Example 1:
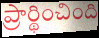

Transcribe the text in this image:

ప్రార్థించింది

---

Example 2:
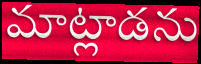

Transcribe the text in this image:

మాట్లాడను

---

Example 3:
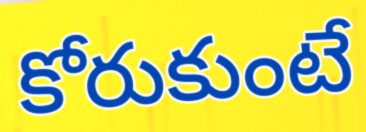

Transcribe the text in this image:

కోరుకుంటే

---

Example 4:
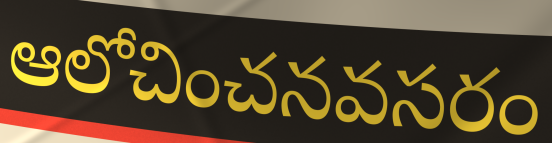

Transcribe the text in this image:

ఆలోచించనవసరం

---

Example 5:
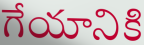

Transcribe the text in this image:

గేయానికి